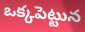
ఒక్కపెట్టున